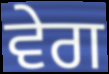
ਵੇਗ